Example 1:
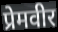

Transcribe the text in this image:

प्रेमवीर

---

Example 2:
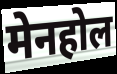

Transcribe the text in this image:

मेनहोल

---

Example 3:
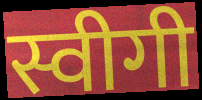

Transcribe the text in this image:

स्वीगी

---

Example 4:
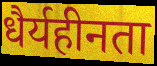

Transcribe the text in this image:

धैर्यहीनता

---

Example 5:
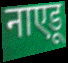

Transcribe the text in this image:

नाएडू